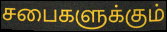
சபைகளுக்கும்